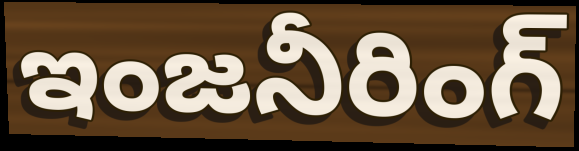
ఇంజనీరింగ్